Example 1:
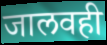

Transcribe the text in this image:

जालवही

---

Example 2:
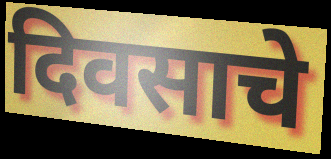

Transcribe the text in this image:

दिवसाचे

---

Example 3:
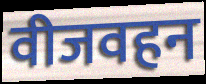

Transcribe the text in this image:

वीजवहन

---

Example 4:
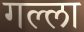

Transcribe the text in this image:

गल्ला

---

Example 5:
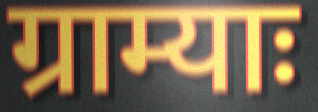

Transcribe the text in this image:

ग्राम्याः